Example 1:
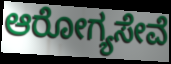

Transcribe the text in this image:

ಆರೋಗ್ಯಸೇವೆ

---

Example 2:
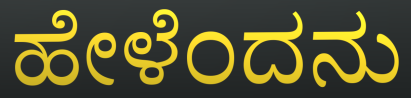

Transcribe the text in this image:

ಹೇಳೆಂದನು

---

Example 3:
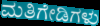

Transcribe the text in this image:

ಮತಿಗೇಡಿಗಳು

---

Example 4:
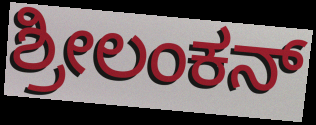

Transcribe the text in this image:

ಶ್ರೀಲಂಕನ್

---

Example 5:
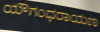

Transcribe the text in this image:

ಯೌಗಂಧರಾಯಣ